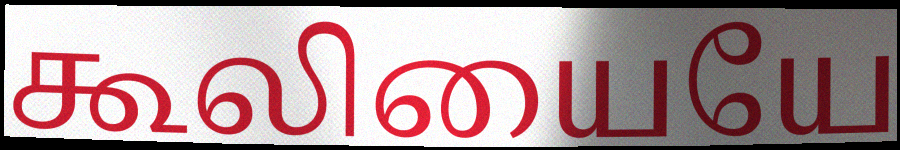
கூலியையே